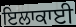
ਇਲਾਕਾਈ